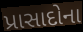
પ્રાસાદોના